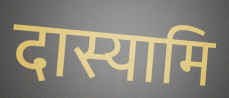
दास्यामि